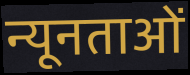
न्यूनताओं